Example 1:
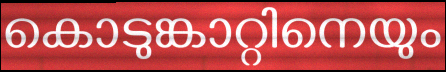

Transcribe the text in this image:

കൊടുങ്കാറ്റിനെയും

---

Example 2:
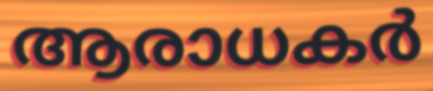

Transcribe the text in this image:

ആരാധകർ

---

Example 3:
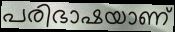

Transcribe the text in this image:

പരിഭാഷയാണ്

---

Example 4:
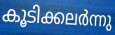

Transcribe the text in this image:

കൂടിക്കലർന്നു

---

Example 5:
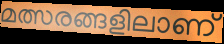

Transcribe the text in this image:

മത്സരങ്ങളിലാണ്